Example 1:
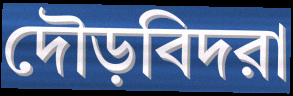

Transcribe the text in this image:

দৌড়বিদরা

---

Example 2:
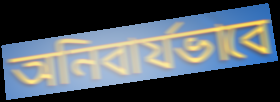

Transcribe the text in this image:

অনিবার্যভাবে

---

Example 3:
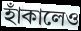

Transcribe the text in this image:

হাঁকালেও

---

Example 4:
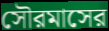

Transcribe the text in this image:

সৌরমাসের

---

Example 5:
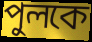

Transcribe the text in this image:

পুলকে